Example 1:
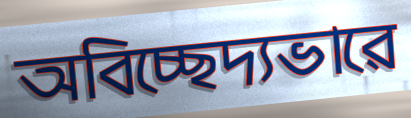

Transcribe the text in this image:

অবিচ্ছেদ্যভাৱে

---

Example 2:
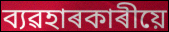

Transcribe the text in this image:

ব্যৱহাৰকাৰীয়ে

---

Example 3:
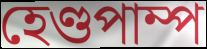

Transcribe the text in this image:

হেণ্ডপাম্প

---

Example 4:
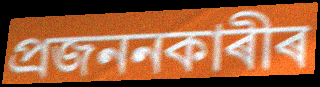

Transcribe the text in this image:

প্ৰজননকাৰীৰ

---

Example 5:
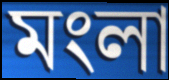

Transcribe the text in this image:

মংলা